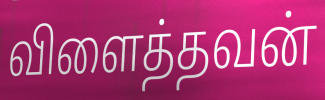
விளைத்தவன்